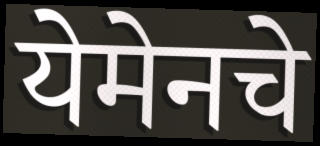
येमेनचे